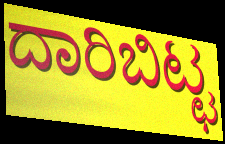
ದಾರಿಬಿಟ್ಟ